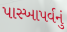
પાસ્ખાપર્વનું